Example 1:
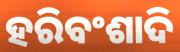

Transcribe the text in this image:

ହରିବଂଶାଦି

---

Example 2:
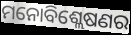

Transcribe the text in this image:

ମନୋବିଶ୍ଲେଷଣର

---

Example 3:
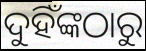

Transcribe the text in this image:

ଦୁହିଁଙ୍କଠାରୁ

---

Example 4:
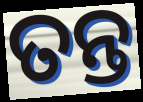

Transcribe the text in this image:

ତନ୍ତ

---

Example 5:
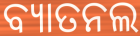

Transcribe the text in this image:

ବ୍ୟାତନଲ